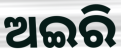
ଅଇରି